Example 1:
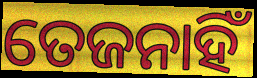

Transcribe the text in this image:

ତେଜନାହିଁ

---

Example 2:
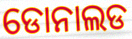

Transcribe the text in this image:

ଡୋନାଲଡ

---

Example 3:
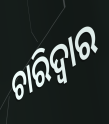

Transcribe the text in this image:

ଚାରିଦ୍ୱାର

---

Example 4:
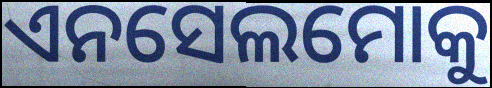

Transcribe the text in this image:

ଏନସେଲମୋକୁ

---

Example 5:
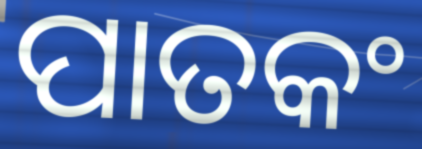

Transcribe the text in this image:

ପାତକଂ